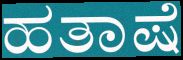
ಹತಾಷೆ